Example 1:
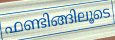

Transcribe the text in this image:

ഫണ്ടിങ്ങിലൂടെ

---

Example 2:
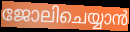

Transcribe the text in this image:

ജോലിചെയ്യാൻ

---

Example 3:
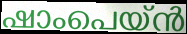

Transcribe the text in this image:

ഷാംപെയ്ൻ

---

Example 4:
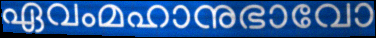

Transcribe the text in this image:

ഏവംമഹാനുഭാവോ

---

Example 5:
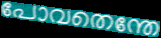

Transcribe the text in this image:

പോവതെന്തേ